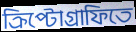
ক্রিপ্টোগ্রাফিতে